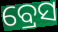
ବ୍ରେସ